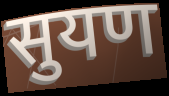
सुयण